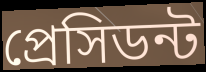
প্রেসিডন্ট